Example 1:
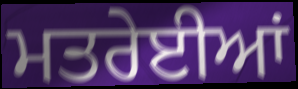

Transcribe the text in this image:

ਮਤਰੇਈਆਂ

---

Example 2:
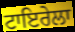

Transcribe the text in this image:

ਟਾਇਰੇਲਾ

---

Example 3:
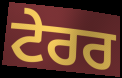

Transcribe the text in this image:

ਟੇਰਰ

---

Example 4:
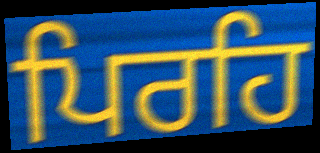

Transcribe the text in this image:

ਪਿਰਹਿ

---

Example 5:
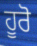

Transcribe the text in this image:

ਹੂਰੋ